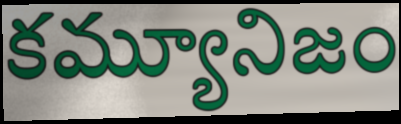
కమ్యూనిజం